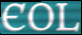
EOL